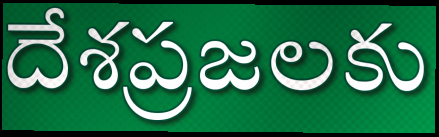
దేశప్రజలకు